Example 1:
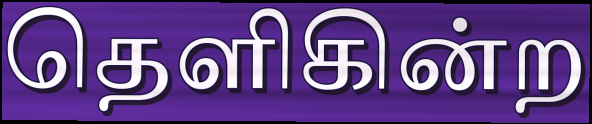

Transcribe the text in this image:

தெளிகின்ற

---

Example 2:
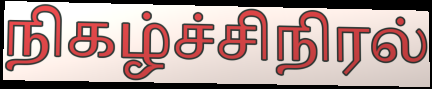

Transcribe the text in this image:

நிகழ்ச்சிநிரல்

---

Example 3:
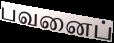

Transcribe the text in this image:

பவனைப்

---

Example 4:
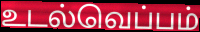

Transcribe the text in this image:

உடல்வெப்பம்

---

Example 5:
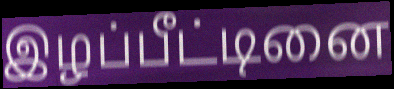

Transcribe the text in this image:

இழப்பீட்டினை